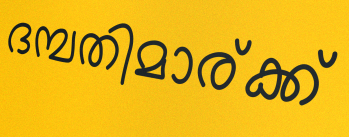
ദമ്പതിമാര്ക്ക്